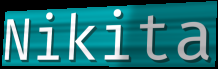
Nikita